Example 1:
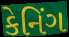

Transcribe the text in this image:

કેનિંગ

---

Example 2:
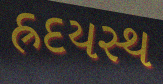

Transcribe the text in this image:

હ્રદયસ્થ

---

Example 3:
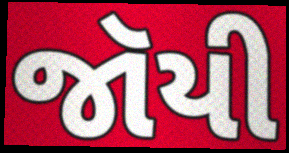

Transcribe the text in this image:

જૉયી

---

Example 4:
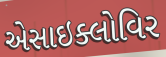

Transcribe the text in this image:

એસાઇક્લોવિર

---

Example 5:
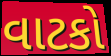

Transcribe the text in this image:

વાટકો